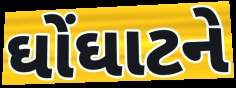
ઘોંઘાટને